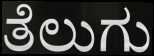
ತೆಲುಗು